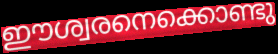
ഈശ്വരനെക്കൊണ്ടു